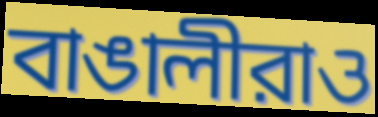
বাঙালীরাও